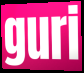
guri